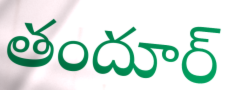
తందూర్